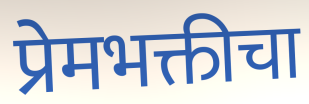
प्रेमभक्तीचा